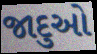
જાદુઓ